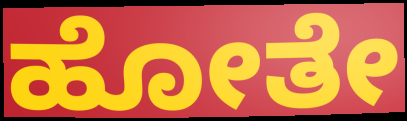
ಹೋತೇ